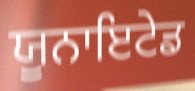
ਯੂਨਾਇਟੇਡ